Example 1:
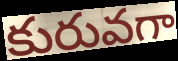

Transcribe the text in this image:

కురువగా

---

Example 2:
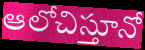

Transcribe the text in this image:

ఆలోచిస్తూనో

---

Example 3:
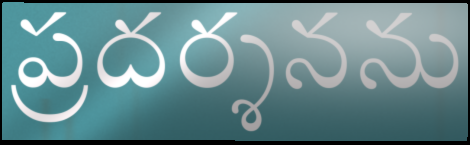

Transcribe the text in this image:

ప్రదర్శనను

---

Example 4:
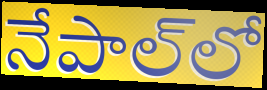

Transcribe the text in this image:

నేపాల్‌లో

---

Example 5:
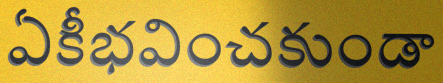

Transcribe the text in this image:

ఏకీభవించకుండా